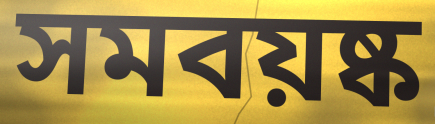
সমবয়ষ্ক